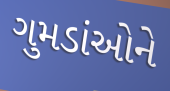
ગુમડાંઓને